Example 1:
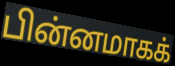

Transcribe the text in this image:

பின்னமாகக்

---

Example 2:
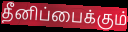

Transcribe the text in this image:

தீனிப்பைக்கும்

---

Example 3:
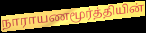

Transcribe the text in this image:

நாராயணமூர்த்தியின்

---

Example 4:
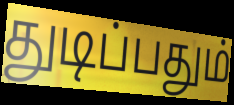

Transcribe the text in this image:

துடிப்பதும்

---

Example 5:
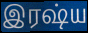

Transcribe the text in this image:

இரஷ்ய